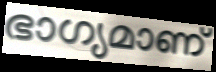
ഭാഗ്യമാണ്